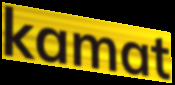
kamat